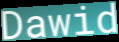
Dawid